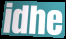
idhe